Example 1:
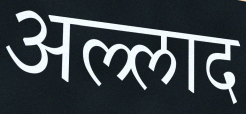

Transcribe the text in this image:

अल्लाद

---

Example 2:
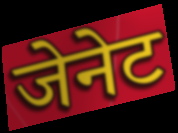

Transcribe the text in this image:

जेनेट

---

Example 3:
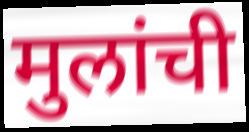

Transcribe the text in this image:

मुलांची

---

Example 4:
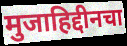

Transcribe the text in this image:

मुजाहिद्दीनचा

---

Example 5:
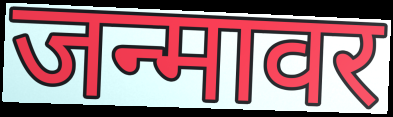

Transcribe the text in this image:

जन्मावर